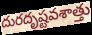
దురదృష్టవశాత్తు